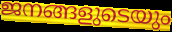
ജനങ്ങളുടെയും